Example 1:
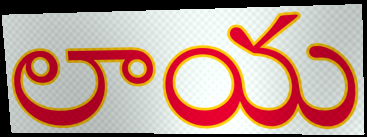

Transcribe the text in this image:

లాయ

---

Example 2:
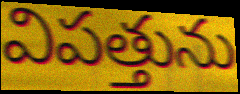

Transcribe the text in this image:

విపత్తును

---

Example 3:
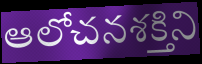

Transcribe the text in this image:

ఆలోచనశక్తిని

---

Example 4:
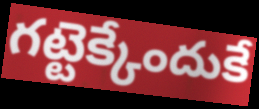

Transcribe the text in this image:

గట్టెక్కేందుకే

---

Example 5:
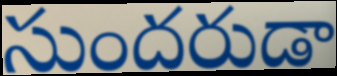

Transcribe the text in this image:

సుందరుడా